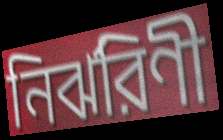
নির্ঝরিণী